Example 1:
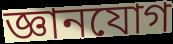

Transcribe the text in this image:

জ্ঞানযোগ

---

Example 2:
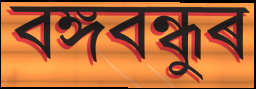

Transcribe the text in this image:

বঙ্গবন্ধুৰ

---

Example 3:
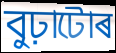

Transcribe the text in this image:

বুঢ়াটোৰ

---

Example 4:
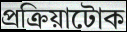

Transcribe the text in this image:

প্ৰক্ৰিয়াটোক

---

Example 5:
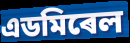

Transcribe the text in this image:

এডমিৰেল